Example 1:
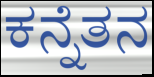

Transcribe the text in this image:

ಕನ್ನೆತನ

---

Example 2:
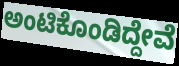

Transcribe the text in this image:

ಅಂಟಿಕೊಂಡಿದ್ದೇವೆ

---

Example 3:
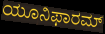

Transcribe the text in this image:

ಯೂನಿಫಾರಮ್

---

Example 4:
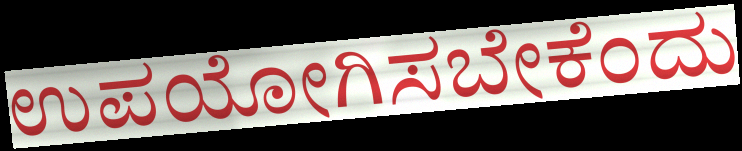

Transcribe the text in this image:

ಉಪಯೋಗಿಸಬೇಕೆಂದು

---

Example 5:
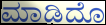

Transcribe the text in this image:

ಮಾಡಿದೊ